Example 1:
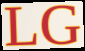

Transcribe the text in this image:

LG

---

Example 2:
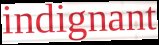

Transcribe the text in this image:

indignant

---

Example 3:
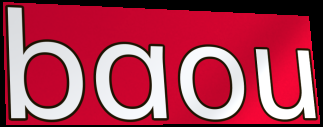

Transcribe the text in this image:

baou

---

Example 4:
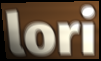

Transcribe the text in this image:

lori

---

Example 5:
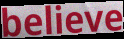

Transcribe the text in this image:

believe